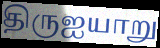
திருஐயாறு